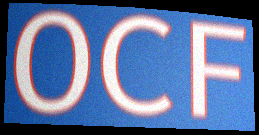
OCF